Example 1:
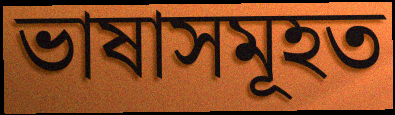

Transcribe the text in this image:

ভাষাসমূহত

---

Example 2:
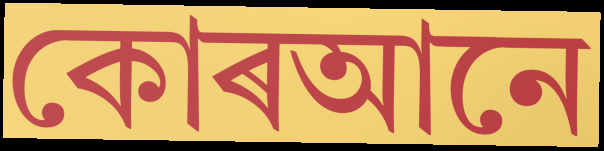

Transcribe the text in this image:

কোৰআনে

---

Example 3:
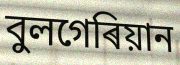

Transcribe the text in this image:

বুলগেৰিয়ান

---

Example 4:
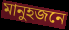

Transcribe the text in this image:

মানুহজনে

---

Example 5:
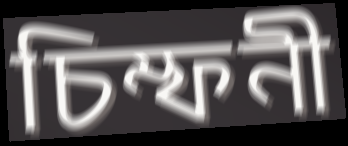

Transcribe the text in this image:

চিম্ফনী